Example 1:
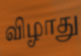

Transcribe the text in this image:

விழாது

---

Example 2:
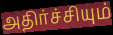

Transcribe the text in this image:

அதிர்ச்சியும்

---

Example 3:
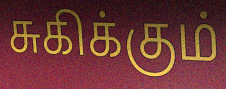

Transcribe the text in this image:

சுகிக்கும்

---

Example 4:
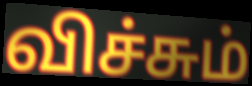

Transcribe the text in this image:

விச்சும்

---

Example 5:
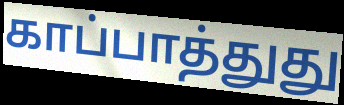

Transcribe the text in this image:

காப்பாத்துது